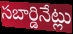
సబార్డినేట్లు